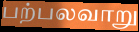
பற்பலவாறு